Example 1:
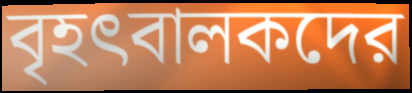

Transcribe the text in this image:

বৃহৎবালকদের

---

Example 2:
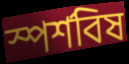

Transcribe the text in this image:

স্পর্শবিষ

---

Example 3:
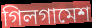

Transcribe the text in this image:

গিলগামেশ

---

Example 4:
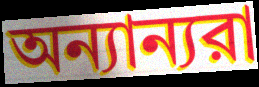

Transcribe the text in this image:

অন্যান্যরা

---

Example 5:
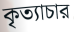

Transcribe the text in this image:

কৃত্যাচার